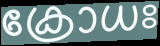
ക്രോധഃ